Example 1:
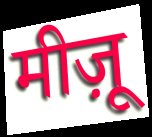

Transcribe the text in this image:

मीज़ू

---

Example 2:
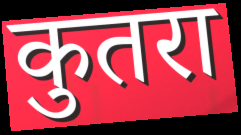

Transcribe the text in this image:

कुतरा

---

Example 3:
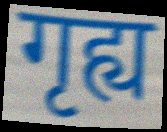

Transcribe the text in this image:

गृह्य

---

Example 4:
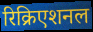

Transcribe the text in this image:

रिक्रिएशनल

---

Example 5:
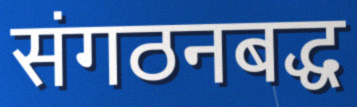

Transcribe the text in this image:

संगठनबद्ध